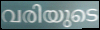
വരിയുടെ